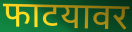
फाटयावर